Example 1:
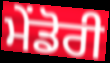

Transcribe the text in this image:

ਮੇਂਡੋਰੀ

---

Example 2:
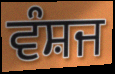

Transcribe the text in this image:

ਵੰਸ਼ਜ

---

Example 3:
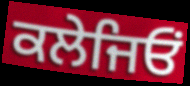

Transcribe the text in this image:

ਕਲੇਜਿਓਂ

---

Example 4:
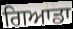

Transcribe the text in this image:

ਗਿਆਡਾ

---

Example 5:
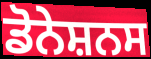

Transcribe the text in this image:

ਡੋਨੇਸ਼ਨਸ